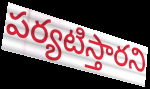
పర్యటిస్తారని